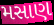
મસાણ